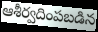
ఆశీర్వదింపబడిన